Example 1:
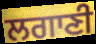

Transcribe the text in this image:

ਲਗਾਣੀ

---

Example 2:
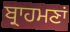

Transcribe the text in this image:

ਬ੍ਰਾਹਮਣਾਂ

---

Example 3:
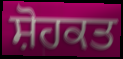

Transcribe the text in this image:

ਸ਼ੋਹਕਤ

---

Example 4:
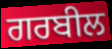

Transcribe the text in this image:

ਗਰਬੀਲ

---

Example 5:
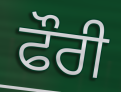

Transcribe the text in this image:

ਫੌਰੀ